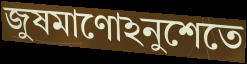
জুষমাণোঽনুশেতে